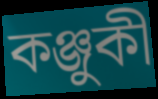
কঞ্জুকী